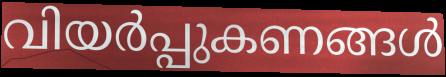
വിയർപ്പുകണങ്ങൾ